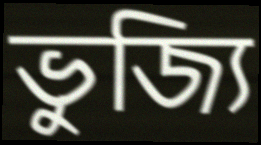
ভুজ্যি